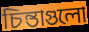
চিন্তাগুলো